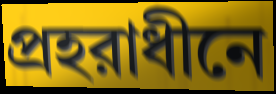
প্রহরাধীনে